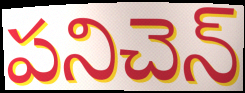
పనిచెన్